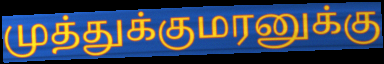
முத்துக்குமரனுக்கு